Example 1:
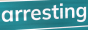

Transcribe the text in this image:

arresting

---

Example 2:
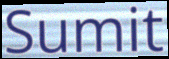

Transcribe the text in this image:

Sumit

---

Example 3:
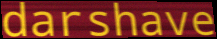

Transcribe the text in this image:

darshave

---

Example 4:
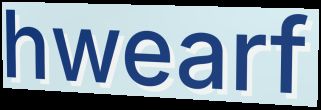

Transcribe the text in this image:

hwearf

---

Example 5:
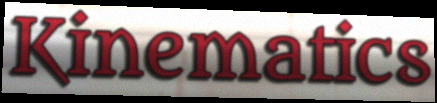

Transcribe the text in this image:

Kinematics